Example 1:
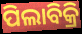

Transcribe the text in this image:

ପିଲାବିକ୍ରି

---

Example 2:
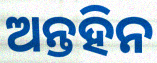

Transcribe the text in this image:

ଅନ୍ତହିନ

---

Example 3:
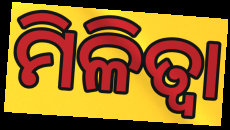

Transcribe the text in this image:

ମିଳିତ୍ଵା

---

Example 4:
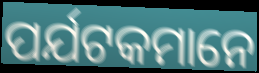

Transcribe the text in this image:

ପର୍ଯଟକମାନେ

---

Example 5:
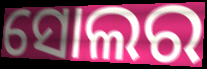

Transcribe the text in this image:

ସୋଲର